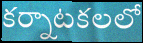
కర్నాటకలలో